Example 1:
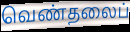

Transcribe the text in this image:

வெண்தலைப்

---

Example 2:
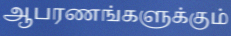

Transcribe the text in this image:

ஆபரணங்களுக்கும்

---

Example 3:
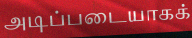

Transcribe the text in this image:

அடிப்படையாகக்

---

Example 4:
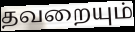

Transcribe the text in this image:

தவறையும்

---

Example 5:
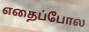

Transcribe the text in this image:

எதைப்போல